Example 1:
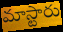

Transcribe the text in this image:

మాస్టారు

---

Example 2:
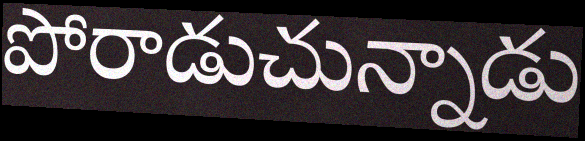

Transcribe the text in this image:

పోరాడుచున్నాడు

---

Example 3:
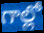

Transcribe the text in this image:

గాల్లో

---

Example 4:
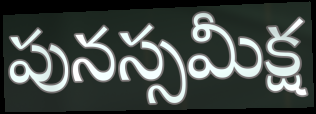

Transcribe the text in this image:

పునస్సమీక్ష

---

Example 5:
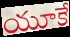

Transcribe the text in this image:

యూకే